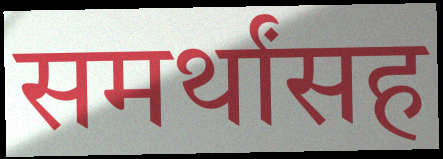
समर्थांसह